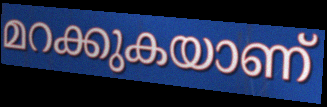
മറക്കുകയാണ്